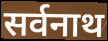
सर्वनाथ